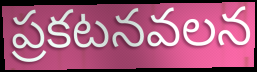
ప్రకటనవలన